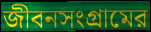
জীবনসংগ্রামের